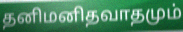
தனிமனிதவாதமும்